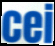
cei